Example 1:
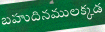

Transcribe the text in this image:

బహుదినములక్కడ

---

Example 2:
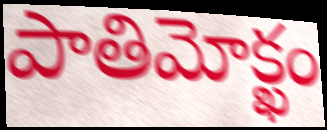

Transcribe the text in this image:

పాతిమోక్ఖం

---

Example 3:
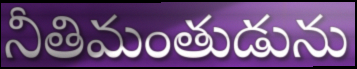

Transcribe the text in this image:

నీతిమంతుడును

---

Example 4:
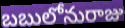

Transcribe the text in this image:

బబులోనురాజు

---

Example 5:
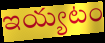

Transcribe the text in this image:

ఇయ్యటం